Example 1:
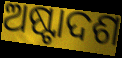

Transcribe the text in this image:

ଅଷ୍ଟାଦଶ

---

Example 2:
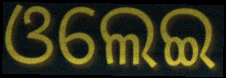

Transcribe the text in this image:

ଓଲେଇ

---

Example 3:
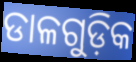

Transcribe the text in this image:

ଡାଳଗୁଡ଼ିକ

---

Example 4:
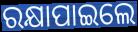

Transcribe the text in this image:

ରକ୍ଷାପାଇଲେ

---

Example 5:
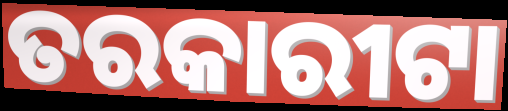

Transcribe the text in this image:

ତରକାରୀଟା